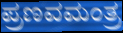
ಪ್ರಣವಮಂತ್ರ